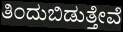
ತಿಂದುಬಿಡುತ್ತೇವೆ